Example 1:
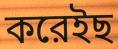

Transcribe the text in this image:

করেইছ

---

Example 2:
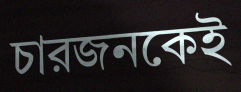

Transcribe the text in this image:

চারজনকেই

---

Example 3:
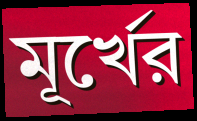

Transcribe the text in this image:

মূর্খের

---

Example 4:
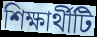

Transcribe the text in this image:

শিক্ষার্থীটি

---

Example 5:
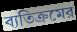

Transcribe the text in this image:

ব্যতিক্রমের